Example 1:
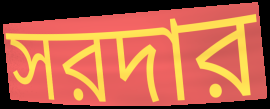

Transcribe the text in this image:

সরদার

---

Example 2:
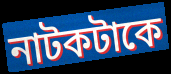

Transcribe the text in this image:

নাটকটাকে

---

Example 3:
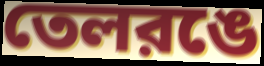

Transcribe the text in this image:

তেলরঙে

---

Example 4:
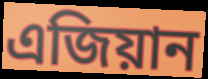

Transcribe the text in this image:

এজিয়ান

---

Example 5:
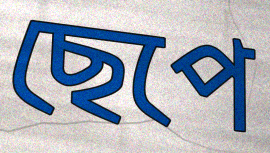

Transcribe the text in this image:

ছেপে